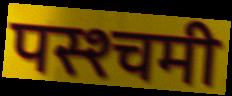
पस्श्चमी